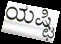
ಯಷ್ಟಿ